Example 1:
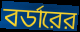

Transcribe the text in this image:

বর্ডারের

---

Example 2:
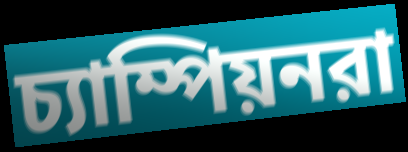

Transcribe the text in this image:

চ্যাম্পিয়নরা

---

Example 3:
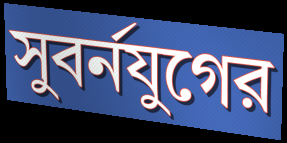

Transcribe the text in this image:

সুবর্নযুগের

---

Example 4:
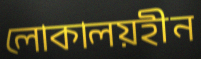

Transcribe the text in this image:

লোকালয়হীন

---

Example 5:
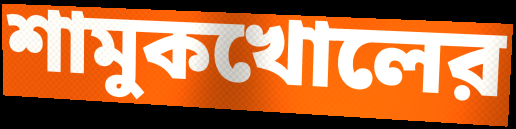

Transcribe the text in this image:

শামুকখোলের